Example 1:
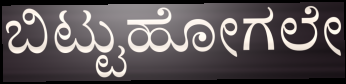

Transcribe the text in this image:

ಬಿಟ್ಟುಹೋಗಲೇ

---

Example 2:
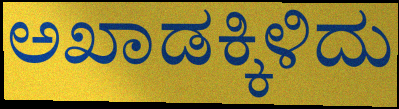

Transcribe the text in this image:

ಅಖಾಡಕ್ಕಿಳಿದು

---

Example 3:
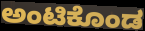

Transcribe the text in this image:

ಅಂಟಿಕೊಂಡ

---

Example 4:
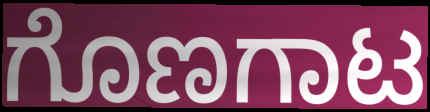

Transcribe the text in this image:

ಗೊಣಗಾಟ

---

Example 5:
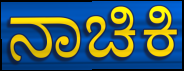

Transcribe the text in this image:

ನಾಚಿಕಿ